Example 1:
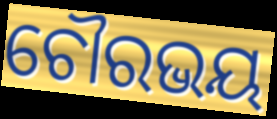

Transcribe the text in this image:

ଚୌରଭୟ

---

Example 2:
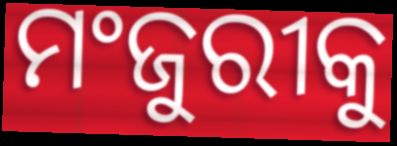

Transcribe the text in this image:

ମଂଜୁରୀକୁ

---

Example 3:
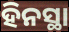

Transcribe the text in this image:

ହିନସ୍ଥା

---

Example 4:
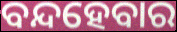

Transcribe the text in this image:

ବନ୍ଦହେବାର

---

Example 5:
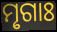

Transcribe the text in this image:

ମୃଗାଃ